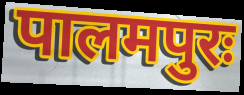
पालमपुरः